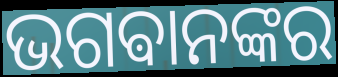
ଭଗଵାନଙ୍କର